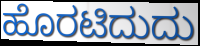
ಹೊರಟಿದುದು